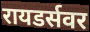
रायडर्सवर